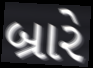
બ્રારે